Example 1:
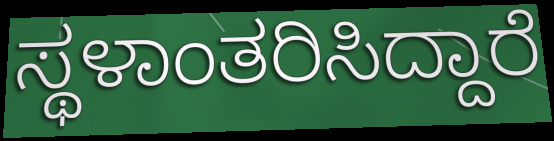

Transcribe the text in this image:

ಸ್ಥಳಾಂತರಿಸಿದ್ದಾರೆ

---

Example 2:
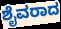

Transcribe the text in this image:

ಶೈವರಾದ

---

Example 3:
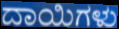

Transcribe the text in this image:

ದಾಯಿಗಳು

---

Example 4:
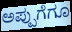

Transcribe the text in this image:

ಅಪ್ಪುಗೆಗೂ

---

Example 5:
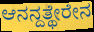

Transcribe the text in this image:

ಆನನ್ದತ್ಥೇರೇನ